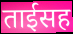
ताईसह